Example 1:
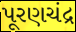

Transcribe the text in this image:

પૂરણચંદ્ર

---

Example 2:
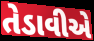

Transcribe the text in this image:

તેડાવીએ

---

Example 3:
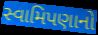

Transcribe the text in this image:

સ્વામિપણાનો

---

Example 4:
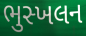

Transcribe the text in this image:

ભુસ્ખલન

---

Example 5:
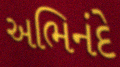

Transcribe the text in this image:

અભિનંદે